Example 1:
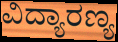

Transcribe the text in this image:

ವಿದ್ಯಾರಣ್ಯ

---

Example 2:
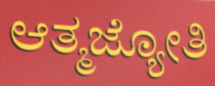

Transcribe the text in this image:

ಆತ್ಮಜ್ಯೋತಿ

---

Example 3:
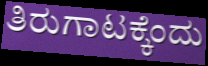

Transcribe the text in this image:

ತಿರುಗಾಟಕ್ಕೆಂದು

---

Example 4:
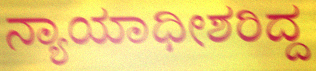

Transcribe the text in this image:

ನ್ಯಾಯಾಧೀಶರಿದ್ದ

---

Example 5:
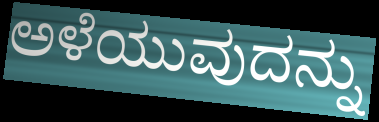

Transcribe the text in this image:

ಅಳೆಯುವುದನ್ನು